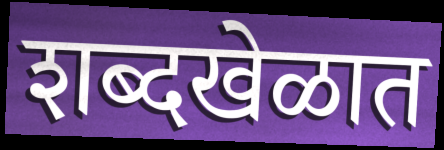
शब्दखेळात